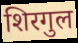
शिरगुल